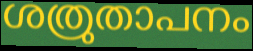
ശത്രുതാപനം